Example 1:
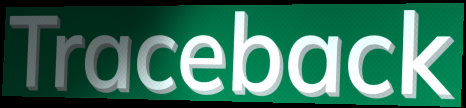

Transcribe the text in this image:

Traceback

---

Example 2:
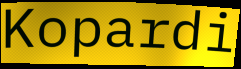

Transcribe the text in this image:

Kopardi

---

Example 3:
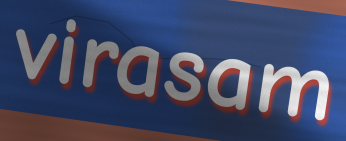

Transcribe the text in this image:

virasam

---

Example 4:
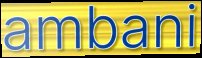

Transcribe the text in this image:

ambani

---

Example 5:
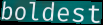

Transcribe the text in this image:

boldest